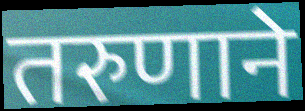
तरुणाने